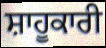
ਸ਼ਾਹੂਕਾਰੀ